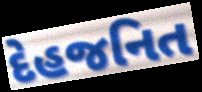
દેહજનિત